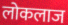
लोकलाज